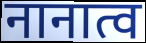
नानात्व